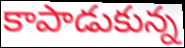
కాపాడుకున్న